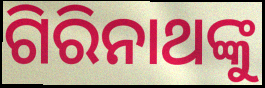
ଗିରିନାଥଙ୍କୁ